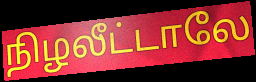
நிழலீட்டாலே